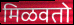
मिळवतो